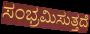
ಸಂಭ್ರಮಿಸುತ್ತದೆ